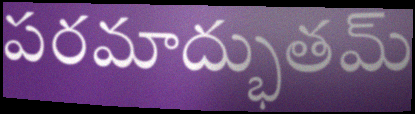
పరమాద్భుతమ్